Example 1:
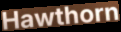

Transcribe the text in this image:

Hawthorn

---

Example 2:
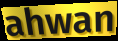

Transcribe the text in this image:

ahwan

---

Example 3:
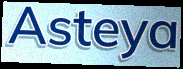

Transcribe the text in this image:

Asteya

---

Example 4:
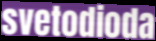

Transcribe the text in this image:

svetodioda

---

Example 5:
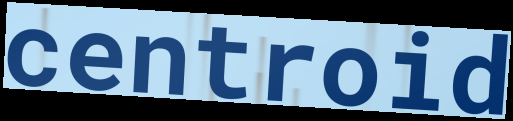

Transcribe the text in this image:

centroid